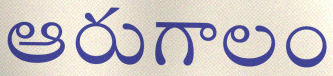
ఆరుగాలం